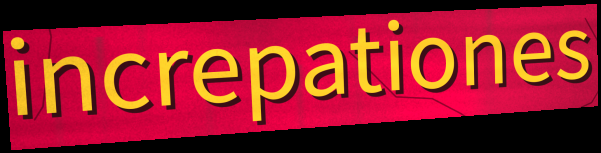
increpationes